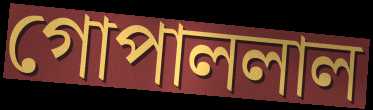
গোপাললাল